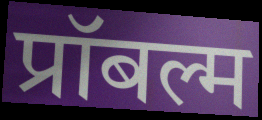
प्रॉबल्म